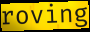
roving